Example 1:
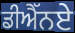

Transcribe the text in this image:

ਡੀਐੱਨਏ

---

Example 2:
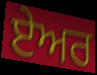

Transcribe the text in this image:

ਏਅਰ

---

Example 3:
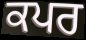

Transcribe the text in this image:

ਕਪਰ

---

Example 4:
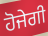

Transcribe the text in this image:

ਹੋਜੇਗੀ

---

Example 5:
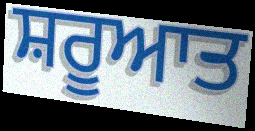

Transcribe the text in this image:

ਸ਼ਰੂਆਤ